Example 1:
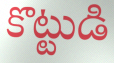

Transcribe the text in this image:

కొట్టుడి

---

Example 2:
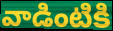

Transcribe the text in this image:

వాడింటికి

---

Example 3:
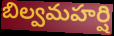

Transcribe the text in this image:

బిల్వమహర్షి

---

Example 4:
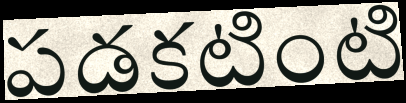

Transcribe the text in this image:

పడకటింటి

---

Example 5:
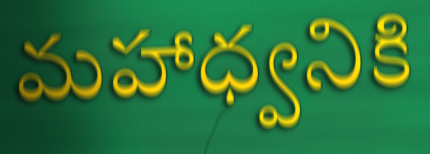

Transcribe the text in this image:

మహాధ్వనికి